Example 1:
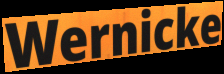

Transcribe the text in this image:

Wernicke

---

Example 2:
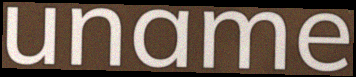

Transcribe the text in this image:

uname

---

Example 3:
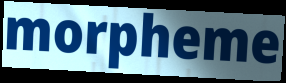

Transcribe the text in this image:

morpheme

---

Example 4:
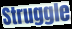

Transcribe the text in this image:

Struggle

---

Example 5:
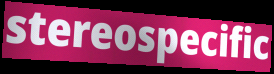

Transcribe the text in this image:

stereospecific